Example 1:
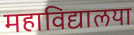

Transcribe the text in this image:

महाविद्यालया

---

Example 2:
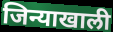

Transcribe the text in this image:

जिन्याखाली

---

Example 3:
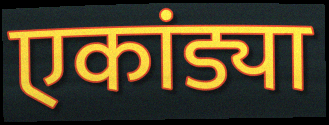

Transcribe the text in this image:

एकांड्या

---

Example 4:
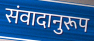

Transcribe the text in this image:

संवादानुरूप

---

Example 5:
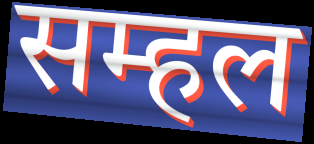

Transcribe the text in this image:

सम्हल